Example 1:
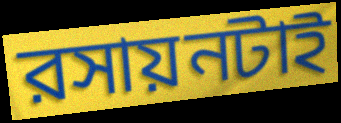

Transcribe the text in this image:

রসায়নটাই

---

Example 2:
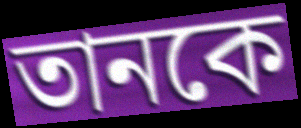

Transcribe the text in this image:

তানকে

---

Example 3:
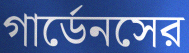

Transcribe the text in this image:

গার্ডেনসের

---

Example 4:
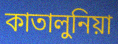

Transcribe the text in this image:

কাতালুনিয়া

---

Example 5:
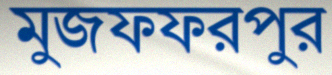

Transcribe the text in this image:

মুজফফরপুর